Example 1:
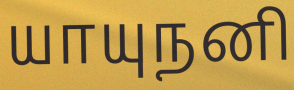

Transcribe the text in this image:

யாயுநனி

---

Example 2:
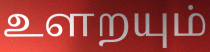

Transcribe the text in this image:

உளறயும்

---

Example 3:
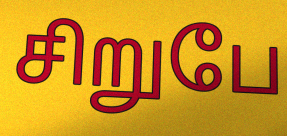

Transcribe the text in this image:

சிறுபே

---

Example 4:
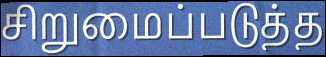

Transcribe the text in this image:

சிறுமைப்படுத்த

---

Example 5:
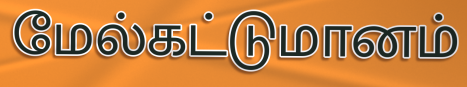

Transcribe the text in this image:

மேல்கட்டுமானம்